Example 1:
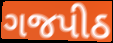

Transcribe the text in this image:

ગજપીઠ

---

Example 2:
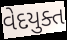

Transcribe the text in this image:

વેદયુક્ત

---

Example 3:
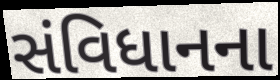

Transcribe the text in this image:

સંવિધાનના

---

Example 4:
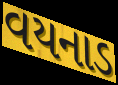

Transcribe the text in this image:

વયનાડ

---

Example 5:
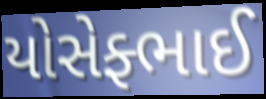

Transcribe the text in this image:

યોસેફ્ભાઈ